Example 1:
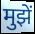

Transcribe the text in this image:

मुझें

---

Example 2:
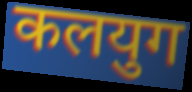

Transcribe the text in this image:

कलयुग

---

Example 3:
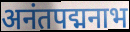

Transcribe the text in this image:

अनंतपद्मनाभ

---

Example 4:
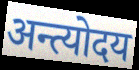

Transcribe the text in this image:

अन्त्योदय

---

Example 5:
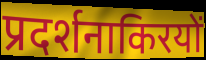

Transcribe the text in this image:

प्रदर्शनाकिरयों